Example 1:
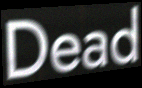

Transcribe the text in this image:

Dead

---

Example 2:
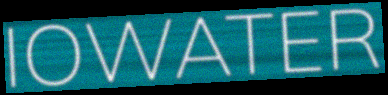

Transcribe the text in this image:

IOWATER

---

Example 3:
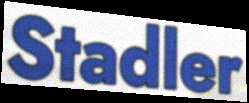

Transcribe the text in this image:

Stadler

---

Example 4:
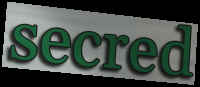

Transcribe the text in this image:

secred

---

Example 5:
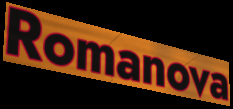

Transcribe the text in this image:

Romanova